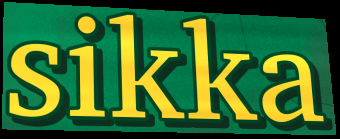
sikka